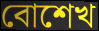
বোশেখ